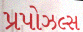
પ્રપોઝલ્સ